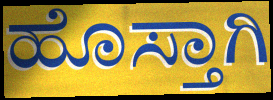
ಹೊಸ್ತಾಗಿ